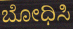
ಬೋಧಿಸಿ